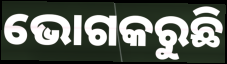
ଭୋଗକରୁଛି